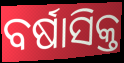
ବର୍ଷାସିକ୍ତ